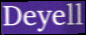
Deyell